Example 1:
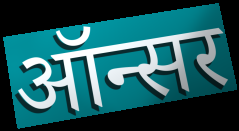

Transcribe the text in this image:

ऑन्सर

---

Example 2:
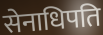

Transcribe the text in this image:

सेनाधिपति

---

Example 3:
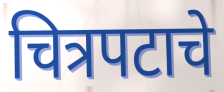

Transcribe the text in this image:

चित्रपटाचे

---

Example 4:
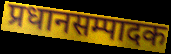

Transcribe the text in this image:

प्रधानसम्पादक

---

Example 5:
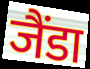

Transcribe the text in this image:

जैंडा